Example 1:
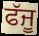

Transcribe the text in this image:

ਫੱਜੂ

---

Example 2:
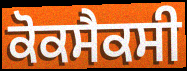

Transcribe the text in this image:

ਕੋਕਸੈਕਸੀ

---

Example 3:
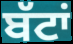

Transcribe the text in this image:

ਬੱਟਾਂ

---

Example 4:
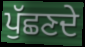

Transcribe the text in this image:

ਪੁੱਛਣਦੇ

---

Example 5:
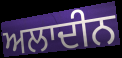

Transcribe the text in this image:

ਅਲਾਦੀਨ